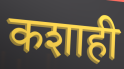
कशाही